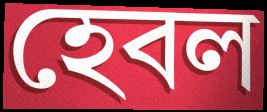
হেবল